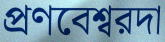
প্রণবেশ্বরদা